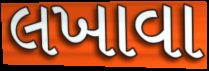
લખાવા